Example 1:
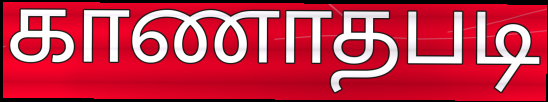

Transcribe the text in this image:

காணாதபடி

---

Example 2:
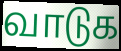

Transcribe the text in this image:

வாடுக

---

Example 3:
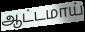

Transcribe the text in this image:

ஆட்டமாய்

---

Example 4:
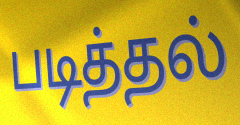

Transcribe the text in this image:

படித்தல்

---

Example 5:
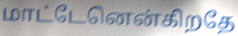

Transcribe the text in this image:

மாட்டேனென்கிறதே